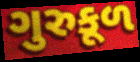
ગુરુકૂળ